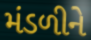
મંડળીને